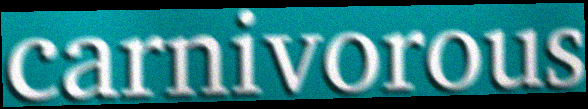
carnivorous